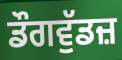
ਡੌਗਵੁੱਡਜ਼